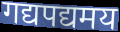
गद्यपद्यमय